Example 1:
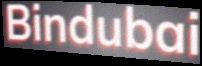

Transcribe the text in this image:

Bindubai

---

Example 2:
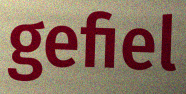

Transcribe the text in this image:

gefiel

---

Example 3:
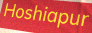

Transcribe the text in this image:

Hoshiapur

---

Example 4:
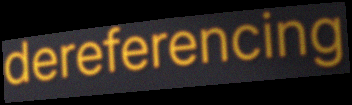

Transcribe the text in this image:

dereferencing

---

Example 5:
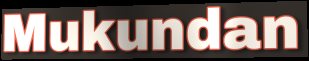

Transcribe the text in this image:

Mukundan